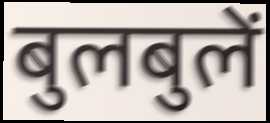
बुलबुलें